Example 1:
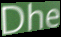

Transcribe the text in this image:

Dhe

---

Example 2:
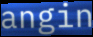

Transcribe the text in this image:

angin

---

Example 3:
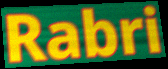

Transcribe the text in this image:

Rabri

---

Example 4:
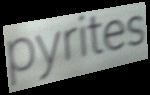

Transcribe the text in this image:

pyrites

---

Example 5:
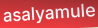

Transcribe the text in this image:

asalyamule